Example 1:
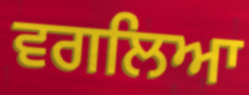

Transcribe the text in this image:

ਵਗਲਿਆ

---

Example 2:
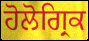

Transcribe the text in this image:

ਹੋਲੋਗ੍ਰਿਕ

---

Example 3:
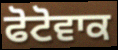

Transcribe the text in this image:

ਫੋਟੋਵਾਕ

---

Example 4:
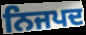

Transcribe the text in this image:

ਨਿਜਪਦ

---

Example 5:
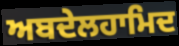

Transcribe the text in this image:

ਅਬਦੇਲਹਾਮਿਦ